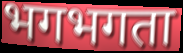
भगभगता